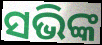
ସଭିଙ୍କ